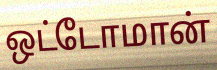
ஒட்டோமான்